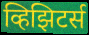
व्हिझिटर्स